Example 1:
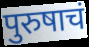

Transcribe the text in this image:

पुरुषाचं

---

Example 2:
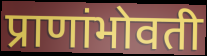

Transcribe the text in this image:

प्राणांभोवती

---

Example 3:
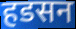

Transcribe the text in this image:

हडसन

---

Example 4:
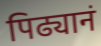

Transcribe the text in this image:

पिढ्यानं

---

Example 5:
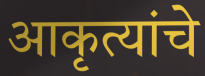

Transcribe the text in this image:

आकृत्यांचे